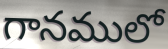
గానములో